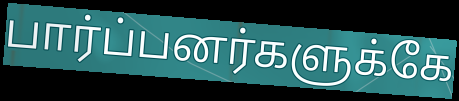
பார்ப்பனர்களுக்கே